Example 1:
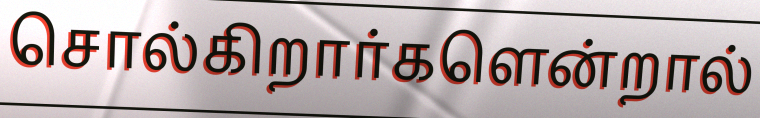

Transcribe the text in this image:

சொல்கிறார்களென்றால்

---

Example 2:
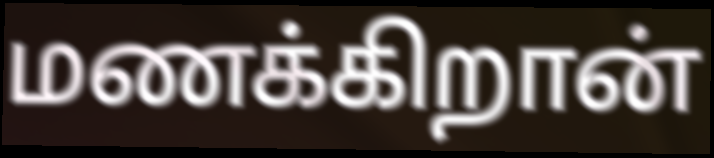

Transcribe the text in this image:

மணக்கிறான்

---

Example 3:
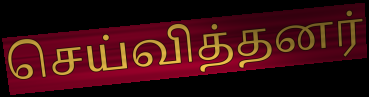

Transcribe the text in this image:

செய்வித்தனர்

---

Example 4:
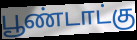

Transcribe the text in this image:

பூண்டாட்கு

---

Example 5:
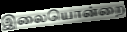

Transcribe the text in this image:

இலையொன்றை